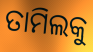
ତାମିଲକୁ